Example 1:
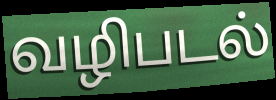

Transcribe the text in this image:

வழிபடல்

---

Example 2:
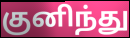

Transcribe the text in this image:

குனிந்து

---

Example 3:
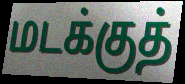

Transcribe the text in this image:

மடக்குத்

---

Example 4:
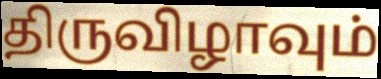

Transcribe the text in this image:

திருவிழாவும்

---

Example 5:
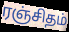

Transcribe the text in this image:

ரஞ்சிதம்